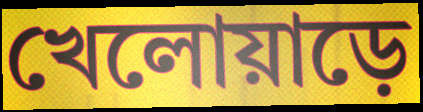
খেলোয়াড়ে